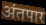
अंतपार